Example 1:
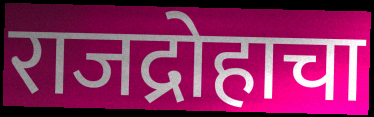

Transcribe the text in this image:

राजद्रोहाचा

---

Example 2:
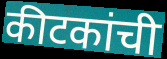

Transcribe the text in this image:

कीटकांची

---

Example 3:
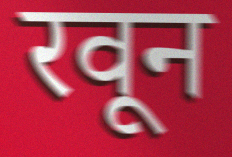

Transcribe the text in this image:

रवून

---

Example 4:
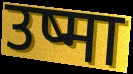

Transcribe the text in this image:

उष्मा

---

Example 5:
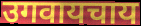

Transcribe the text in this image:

उगवायचाय